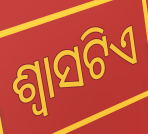
ଶ୍ଵାସଟିଏ